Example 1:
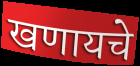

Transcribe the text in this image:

खणायचे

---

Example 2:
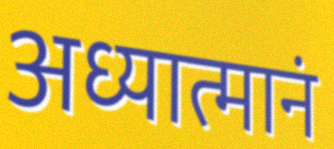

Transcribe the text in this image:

अध्यात्मानं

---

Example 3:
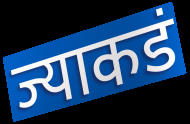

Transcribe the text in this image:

ज्याकडं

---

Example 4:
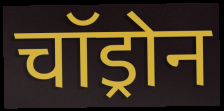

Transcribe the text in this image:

चॉड्रोन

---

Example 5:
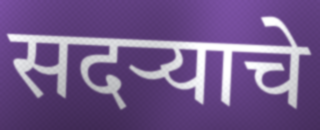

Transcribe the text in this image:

सदऱ्याचे